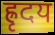
ह्रृदय